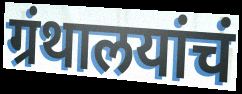
ग्रंथालयांचं